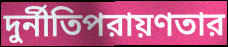
দুর্নীতিপরায়ণতার